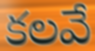
కలవే